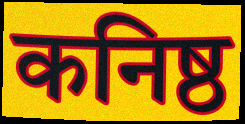
कनिष्ठ